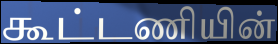
கூட்டணியின்